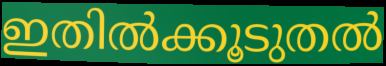
ഇതിൽക്കൂടുതൽ